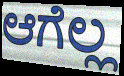
ಆಗೆಲ್ಲ